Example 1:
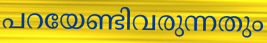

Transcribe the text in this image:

പറയേണ്ടിവരുന്നതും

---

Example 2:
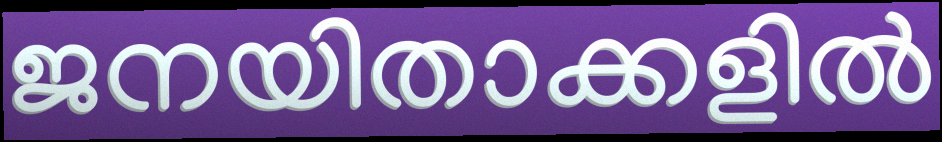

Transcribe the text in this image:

ജനയിതാക്കളിൽ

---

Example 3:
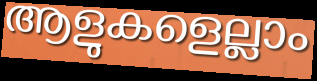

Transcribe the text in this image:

ആളുകളെല്ലാം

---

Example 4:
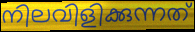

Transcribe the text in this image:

നിലവിളിക്കുന്നത്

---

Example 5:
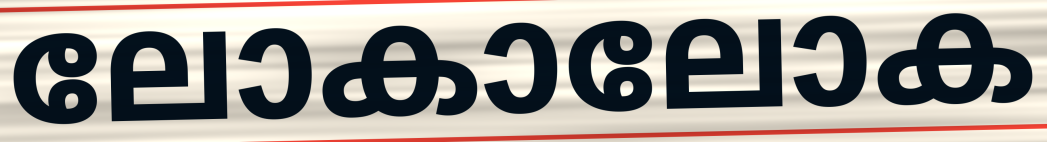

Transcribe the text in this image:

ലോകാലോക